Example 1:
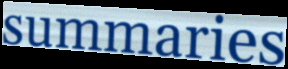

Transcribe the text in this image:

summaries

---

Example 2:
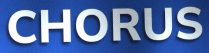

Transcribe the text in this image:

CHORUS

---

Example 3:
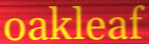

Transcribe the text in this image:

oakleaf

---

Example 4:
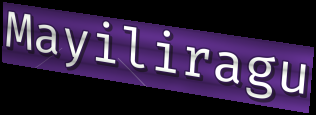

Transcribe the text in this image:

Mayiliragu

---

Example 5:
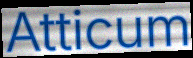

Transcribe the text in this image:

Atticum